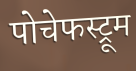
पोचेफस्ट्रूम